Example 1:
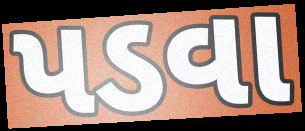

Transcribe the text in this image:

પડવા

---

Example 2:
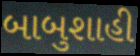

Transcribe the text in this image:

બાબુશાહી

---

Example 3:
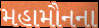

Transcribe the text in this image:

મહામૌનના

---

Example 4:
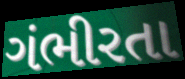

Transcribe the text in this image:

ગંભીરતા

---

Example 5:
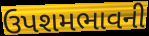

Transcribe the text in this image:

ઉપશમભાવની